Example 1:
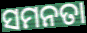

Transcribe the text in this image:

ସମନତା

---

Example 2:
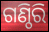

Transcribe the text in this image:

ଗଣ୍ଠିରି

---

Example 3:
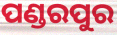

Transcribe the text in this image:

ପଣ୍ଡରପୁର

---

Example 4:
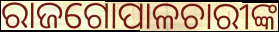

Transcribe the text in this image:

ରାଜଗୋପାଳଚାରୀଙ୍କ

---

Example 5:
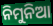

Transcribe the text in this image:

ନିମୁନିଆ